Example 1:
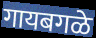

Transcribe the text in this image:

गायबगळे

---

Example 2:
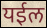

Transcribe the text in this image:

यईल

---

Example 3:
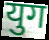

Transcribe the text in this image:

युग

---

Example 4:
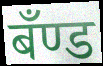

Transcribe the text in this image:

बँण्ड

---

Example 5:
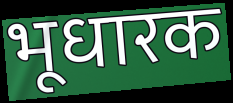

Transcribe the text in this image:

भूधारक